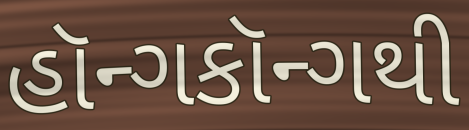
હૉન્ગકૉન્ગથી